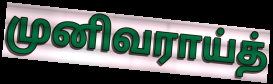
முனிவராய்த்